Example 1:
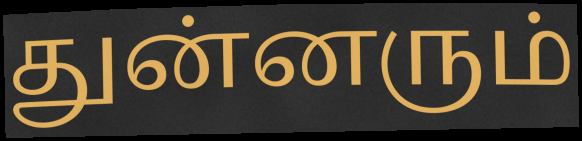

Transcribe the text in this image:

துன்னரும்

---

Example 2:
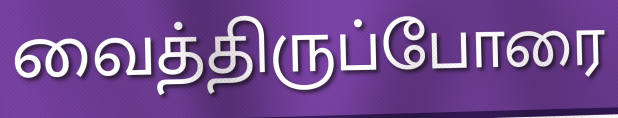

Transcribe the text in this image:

வைத்திருப்போரை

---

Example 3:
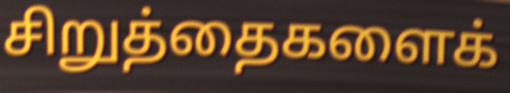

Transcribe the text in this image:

சிறுத்தைகளைக்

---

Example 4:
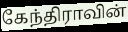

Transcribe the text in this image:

கேந்திராவின்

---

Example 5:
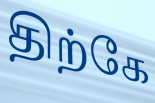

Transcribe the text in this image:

திற்கே